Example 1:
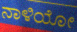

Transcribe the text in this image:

ನಾಳಿಯೋ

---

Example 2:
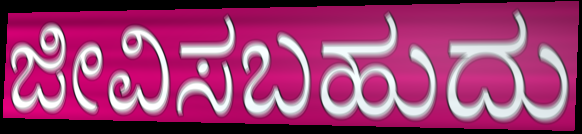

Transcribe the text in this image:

ಜೀವಿಸಬಹುದು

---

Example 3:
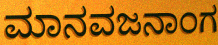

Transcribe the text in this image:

ಮಾನವಜನಾಂಗ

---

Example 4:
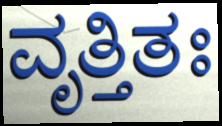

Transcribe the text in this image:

ವೃತ್ತಿತಃ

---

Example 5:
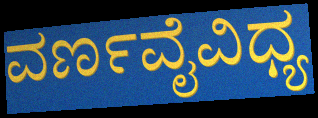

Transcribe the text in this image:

ವರ್ಣವೈವಿಧ್ಯ